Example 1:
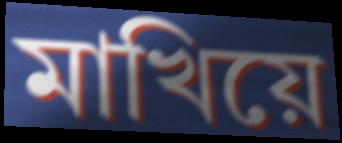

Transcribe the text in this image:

মাখিয়ে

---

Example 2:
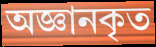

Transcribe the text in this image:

অজ্ঞানকৃত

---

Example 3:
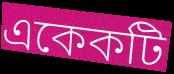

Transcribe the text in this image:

একেকটি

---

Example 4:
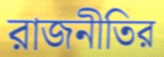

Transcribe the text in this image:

রাজনীতির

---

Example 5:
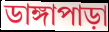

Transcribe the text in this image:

ডাঙ্গাপাড়া